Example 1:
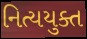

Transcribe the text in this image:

નિત્યયુક્ત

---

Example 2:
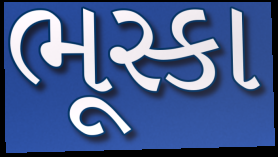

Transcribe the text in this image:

ભૂસ્કા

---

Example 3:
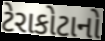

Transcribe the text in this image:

ટેરાકોટાનો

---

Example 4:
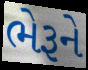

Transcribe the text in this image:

ભેરૂને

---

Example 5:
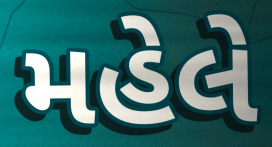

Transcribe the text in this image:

મહેલે